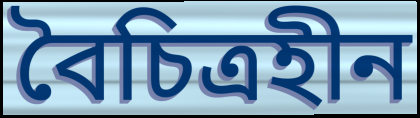
বৈচিত্রহীন